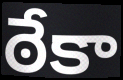
ఠేకా